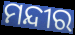
ମନ୍ଦୀର